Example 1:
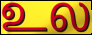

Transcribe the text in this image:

உல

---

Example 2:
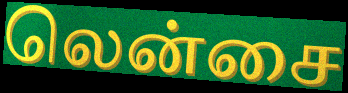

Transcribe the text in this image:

லென்சை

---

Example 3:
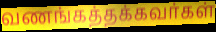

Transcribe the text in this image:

வணங்கத்தக்கவர்கள்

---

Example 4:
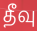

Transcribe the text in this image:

தீவு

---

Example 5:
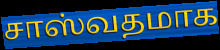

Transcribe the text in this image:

சாஸ்வதமாக